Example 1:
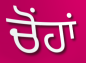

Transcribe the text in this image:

ਚੋਂਹਾਂ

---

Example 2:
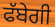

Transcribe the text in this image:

ਫੱਬੇਗੀ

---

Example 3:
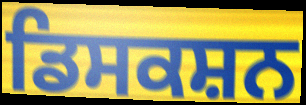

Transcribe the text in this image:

ਡਿਸਕਸ਼ਨ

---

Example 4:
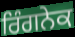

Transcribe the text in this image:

ਰਿੰਗਨੇਕ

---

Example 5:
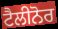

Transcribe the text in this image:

ਟੈਲੀਨੋਰ